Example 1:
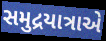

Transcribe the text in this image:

સમુદ્રયાત્રાએ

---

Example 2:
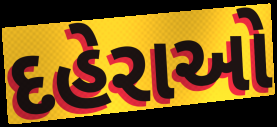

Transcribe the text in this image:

દહેરાઓ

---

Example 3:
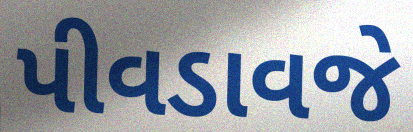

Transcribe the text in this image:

પીવડાવજે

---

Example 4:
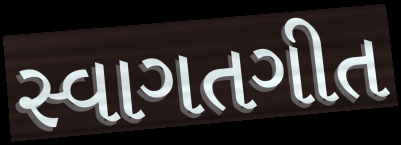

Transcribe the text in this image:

સ્વાગતગીત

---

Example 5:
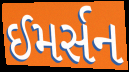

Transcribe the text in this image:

ઈમર્સન